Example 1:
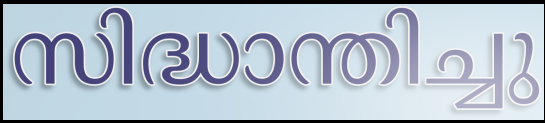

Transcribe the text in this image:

സിദ്ധാന്തിച്ചു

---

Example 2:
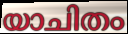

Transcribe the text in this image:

യാചിതം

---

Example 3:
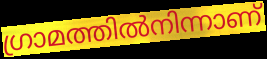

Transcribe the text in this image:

ഗ്രാമത്തിൽനിന്നാണ്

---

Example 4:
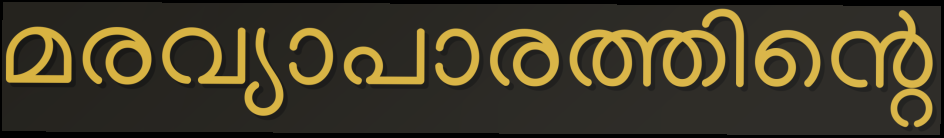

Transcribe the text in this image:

മരവ്യാപാരത്തിന്റെ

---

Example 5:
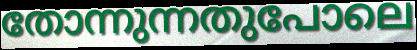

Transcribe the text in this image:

തോന്നുന്നതുപോലെ